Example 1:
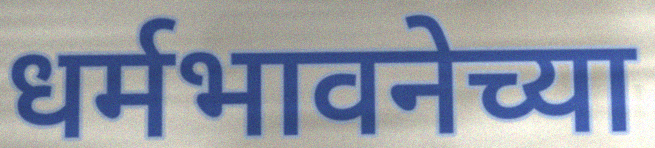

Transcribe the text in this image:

धर्मभावनेच्या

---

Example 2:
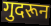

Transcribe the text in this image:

गुदरून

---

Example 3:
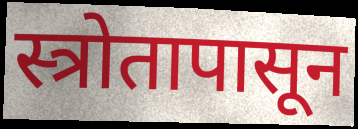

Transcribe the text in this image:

स्त्रोतापासून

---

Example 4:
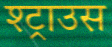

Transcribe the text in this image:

श्ट्राउस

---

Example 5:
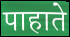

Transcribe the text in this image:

पाहाते